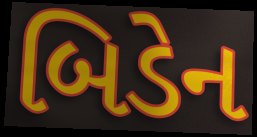
બિડેન